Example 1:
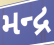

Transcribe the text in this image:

મન્દ્ર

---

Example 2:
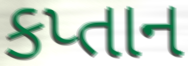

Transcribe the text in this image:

કપ્તાન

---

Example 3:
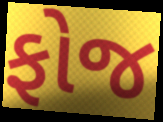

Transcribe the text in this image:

ફોજ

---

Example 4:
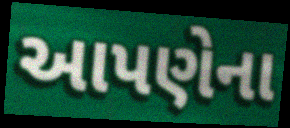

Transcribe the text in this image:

આપણેના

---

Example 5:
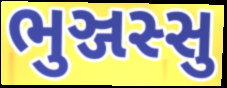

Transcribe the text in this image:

ભુઞ્જસ્સુ